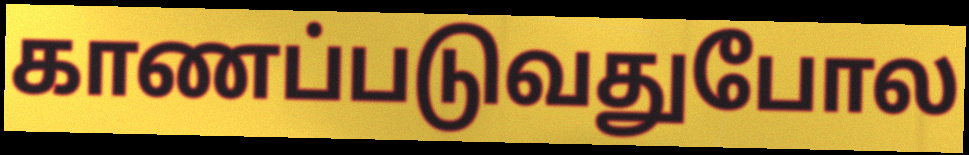
காணப்படுவதுபோல